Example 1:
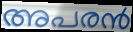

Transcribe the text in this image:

അപരൻ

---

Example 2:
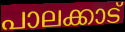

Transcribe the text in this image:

പാലക്കാട്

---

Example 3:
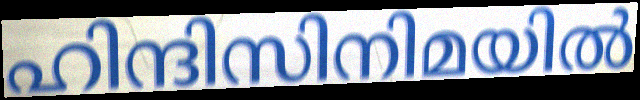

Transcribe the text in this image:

ഹിന്ദിസിനിമയിൽ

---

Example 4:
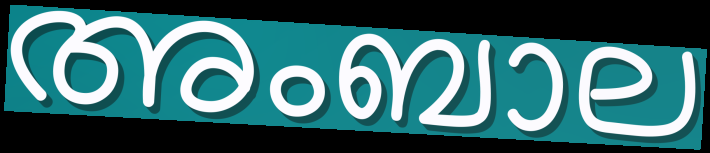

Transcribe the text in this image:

അംബാല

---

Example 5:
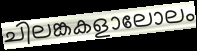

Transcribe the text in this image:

ചിലങ്കകളാലോലം